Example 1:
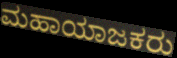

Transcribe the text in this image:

ಮಹಾಯಾಜಕರು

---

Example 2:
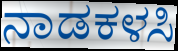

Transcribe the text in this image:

ನಾಡಕಳಸಿ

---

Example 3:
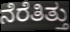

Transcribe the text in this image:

ನೆರೆತಿತ್ತು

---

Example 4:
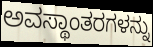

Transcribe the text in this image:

ಅವಸ್ಥಾಂತರಗಳನ್ನು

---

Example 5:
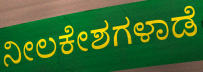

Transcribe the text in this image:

ನೀಲಕೇಶಗಳಾಡೆ